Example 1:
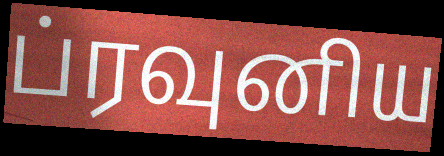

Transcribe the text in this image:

ப்ரவுனிய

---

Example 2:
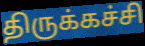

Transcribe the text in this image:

திருக்கச்சி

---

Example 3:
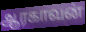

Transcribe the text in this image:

ஆரகாவன்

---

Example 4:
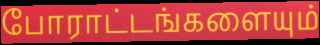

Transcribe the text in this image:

போராட்டங்களையும்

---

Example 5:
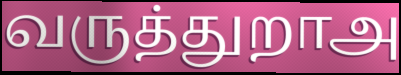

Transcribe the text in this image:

வருத்துறாஅ